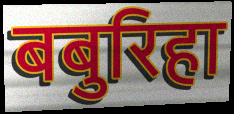
बबुरिहा